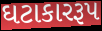
ઘટાકારરૂપ